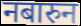
नबारुन